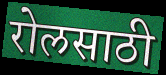
रोलसाठी